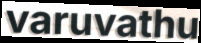
varuvathu